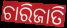
ଚାରିଜାତି